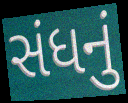
સંધનું